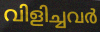
വിളിച്ചവർ